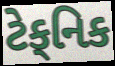
ટેક્‌નિક